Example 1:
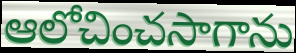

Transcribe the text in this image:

ఆలోచించసాగాను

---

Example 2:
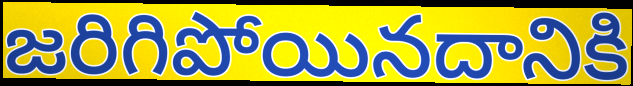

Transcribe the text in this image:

జరిగిపోయినదానికి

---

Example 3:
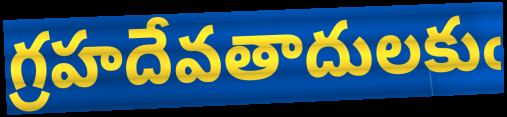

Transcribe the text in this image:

గ్రహదేవతాదులకుఁ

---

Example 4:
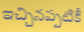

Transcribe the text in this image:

ఇచ్చినప్పటికీ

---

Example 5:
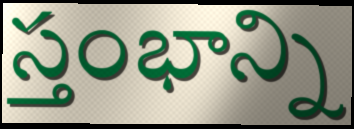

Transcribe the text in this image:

స్తంభాన్ని